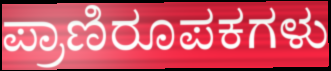
ಪ್ರಾಣಿರೂಪಕಗಳು